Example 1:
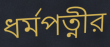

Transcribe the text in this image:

ধর্মপত্নীর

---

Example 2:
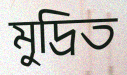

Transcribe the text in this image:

মুদ্রিত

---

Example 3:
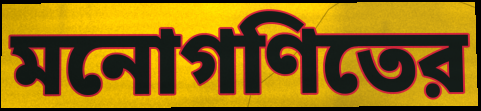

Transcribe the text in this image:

মনোগণিতের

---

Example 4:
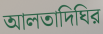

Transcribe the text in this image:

আলতাদিঘির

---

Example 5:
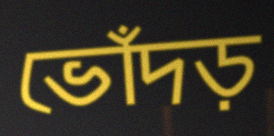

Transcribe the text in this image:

ভোঁদড়